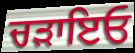
ਚੜਾਇਓ